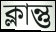
ক্লান্তু